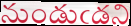
నుండుఁడని